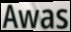
Awas